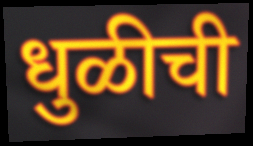
धुळीची